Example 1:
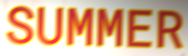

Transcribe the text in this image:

SUMMER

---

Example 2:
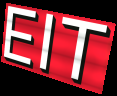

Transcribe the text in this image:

EIT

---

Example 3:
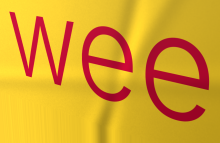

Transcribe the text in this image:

wee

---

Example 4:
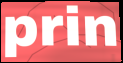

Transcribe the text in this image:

prin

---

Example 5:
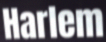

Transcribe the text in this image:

Harlem